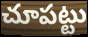
చూపట్టు